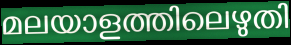
മലയാളത്തിലെഴുതി